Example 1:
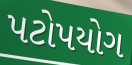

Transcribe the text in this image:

પટોપયોગ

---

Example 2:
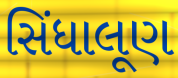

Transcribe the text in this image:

સિંધાલૂણ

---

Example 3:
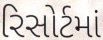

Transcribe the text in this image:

રિસોર્ટમાં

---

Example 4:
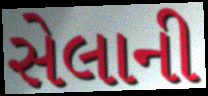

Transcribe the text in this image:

સેલાની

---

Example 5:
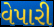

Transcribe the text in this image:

વેપારી